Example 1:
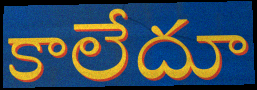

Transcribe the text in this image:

కాలేదూ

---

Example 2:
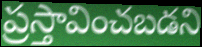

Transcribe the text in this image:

ప్రస్తావించబడని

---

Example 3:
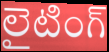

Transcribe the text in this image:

లైటింగ్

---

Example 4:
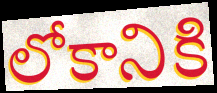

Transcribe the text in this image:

లోకానికి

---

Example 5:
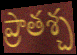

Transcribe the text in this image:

ప్రాతశ్చ